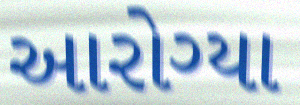
આરોગ્યા